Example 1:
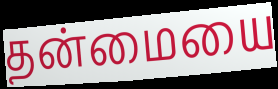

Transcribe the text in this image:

தன்மையை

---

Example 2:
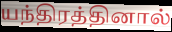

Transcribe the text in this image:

யந்திரத்தினால்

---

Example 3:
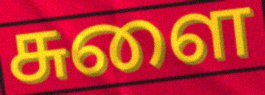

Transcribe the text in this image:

சுளை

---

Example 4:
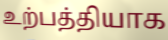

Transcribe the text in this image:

உற்பத்தியாக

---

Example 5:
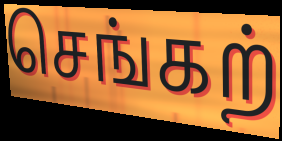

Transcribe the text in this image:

செங்கற்